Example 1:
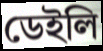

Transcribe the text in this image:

ডেইলি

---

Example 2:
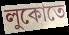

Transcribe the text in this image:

লুকোতে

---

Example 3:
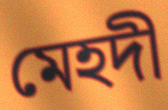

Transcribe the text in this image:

মেহদী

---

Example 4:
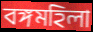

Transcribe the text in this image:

বঙ্গমহিলা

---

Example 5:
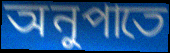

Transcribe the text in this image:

অনুপাতে